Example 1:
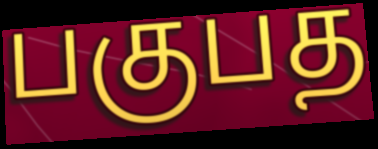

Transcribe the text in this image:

பகுபத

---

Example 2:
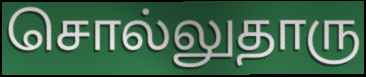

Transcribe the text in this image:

சொல்லுதாரு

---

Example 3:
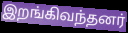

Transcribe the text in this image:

இறங்கிவந்தனர்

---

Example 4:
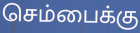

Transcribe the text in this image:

செம்பைக்கு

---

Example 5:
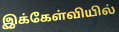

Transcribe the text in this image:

இக்கேள்வியில்